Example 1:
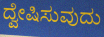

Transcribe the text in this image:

ದ್ವೇಷಿಸುವುದು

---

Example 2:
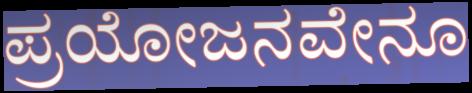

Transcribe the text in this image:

ಪ್ರಯೋಜನವೇನೂ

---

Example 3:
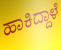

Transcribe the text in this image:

ಹಾಕಿದ್ದಾಳೆ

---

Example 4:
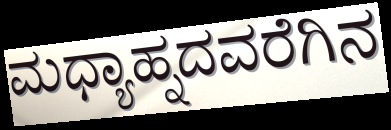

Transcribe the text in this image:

ಮಧ್ಯಾಹ್ನದವರೆಗಿನ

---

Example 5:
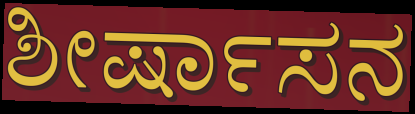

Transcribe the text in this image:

ಶೀರ್ಷಾಸನ